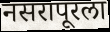
नसरापूरला